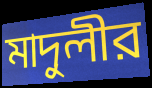
মাদুলীর